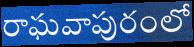
రాఘవాపురంలో